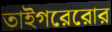
তাইগরেরোর